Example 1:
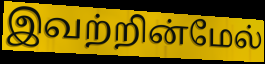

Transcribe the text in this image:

இவற்றின்மேல்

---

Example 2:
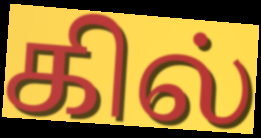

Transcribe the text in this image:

கில்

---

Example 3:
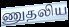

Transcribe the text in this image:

ணுதலிய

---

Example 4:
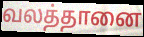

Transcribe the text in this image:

வலத்தானை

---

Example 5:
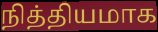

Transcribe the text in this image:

நித்தியமாக